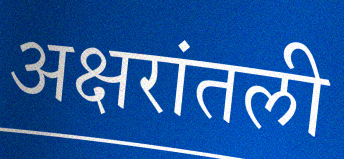
अक्षरांतली